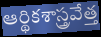
ఆర్థికశాస్త్రవేత్త